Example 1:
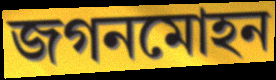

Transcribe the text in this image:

জগনমোহন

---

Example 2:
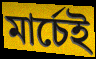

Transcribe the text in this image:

মার্চেই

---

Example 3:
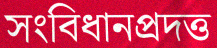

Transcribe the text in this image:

সংবিধানপ্রদত্ত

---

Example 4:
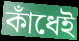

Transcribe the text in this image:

কাঁধেই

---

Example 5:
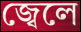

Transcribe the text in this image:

জ্বেলে